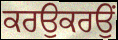
ਕਰਉਕਰਉਂ